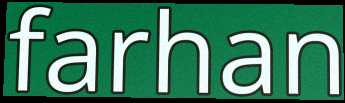
farhan